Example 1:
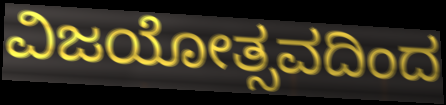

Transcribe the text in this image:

ವಿಜಯೋತ್ಸವದಿಂದ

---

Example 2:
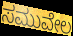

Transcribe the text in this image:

ಸಮುವೇಲ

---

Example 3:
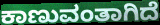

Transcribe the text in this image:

ಕಾಣುವಂತಾಗಿದೆ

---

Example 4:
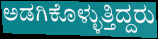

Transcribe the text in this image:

ಅಡಗಿಕೊಳ್ಳುತ್ತಿದ್ದರು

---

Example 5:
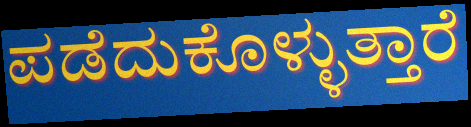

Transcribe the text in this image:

ಪಡೆದುಕೊಳ್ಳುತ್ತಾರೆ